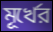
মূর্খের